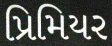
પ્રિમિયર